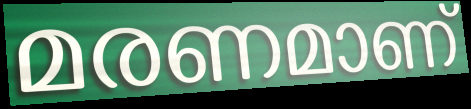
മരണമാണ്